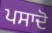
ਪਸਾਦੋ